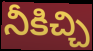
నీకిచ్చి